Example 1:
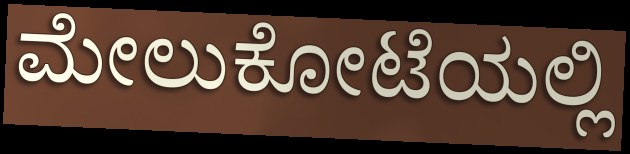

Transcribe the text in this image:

ಮೇಲುಕೋಟೆಯಲ್ಲಿ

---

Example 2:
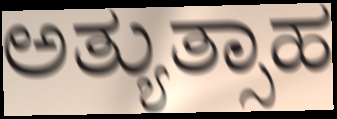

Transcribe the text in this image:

ಅತ್ಯುತ್ಸಾಹ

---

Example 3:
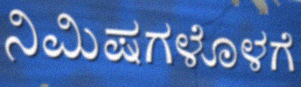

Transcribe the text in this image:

ನಿಮಿಷಗಳೊಳಗೆ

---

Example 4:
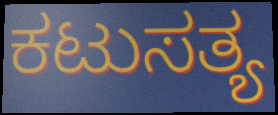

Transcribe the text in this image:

ಕಟುಸತ್ಯ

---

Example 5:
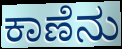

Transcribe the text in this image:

ಕಾಣೆನು